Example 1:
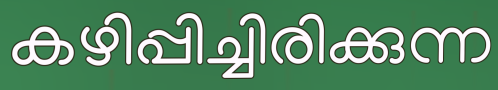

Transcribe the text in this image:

കഴിപ്പിച്ചിരിക്കുന്ന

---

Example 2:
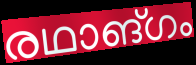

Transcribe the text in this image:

രഥാങ്ഗം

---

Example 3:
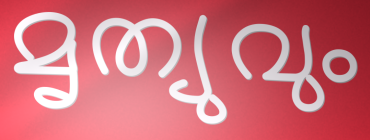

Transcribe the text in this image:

മൃത്യുവും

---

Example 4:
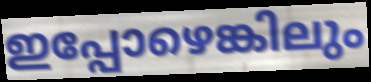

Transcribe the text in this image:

ഇപ്പോഴെങ്കിലും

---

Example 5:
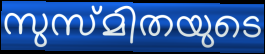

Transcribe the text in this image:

സുസ്മിതയുടെ